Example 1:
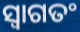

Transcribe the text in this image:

ସ୍ୱାଗତଂ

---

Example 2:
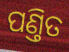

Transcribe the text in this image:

ପଣ୍ତିତ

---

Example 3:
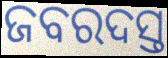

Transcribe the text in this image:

ଜବରଦସ୍ତ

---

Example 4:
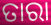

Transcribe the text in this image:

ତାରା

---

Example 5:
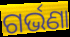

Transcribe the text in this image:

ଗର୍ଭଣା